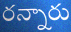
రన్నారు